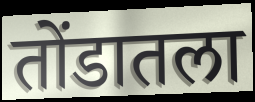
तोंडातला